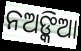
ନଅଙ୍କିଆ